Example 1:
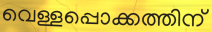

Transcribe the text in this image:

വെള്ളപ്പൊക്കത്തിന്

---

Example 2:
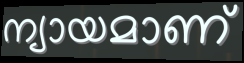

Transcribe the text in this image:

ന്യായമാണ്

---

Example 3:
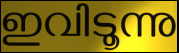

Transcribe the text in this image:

ഇവിടൂന്നു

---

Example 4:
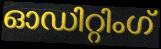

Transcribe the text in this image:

ഓഡിറ്റിംഗ്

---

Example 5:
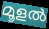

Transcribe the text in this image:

മൂളൽ